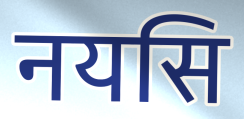
नयसि